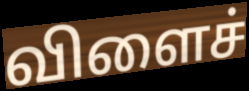
விளைச்